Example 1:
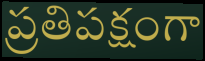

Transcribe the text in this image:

ప్రతిపక్షంగా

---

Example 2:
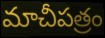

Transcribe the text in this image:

మాచీపత్రం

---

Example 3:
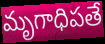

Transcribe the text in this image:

మృగాధిపతే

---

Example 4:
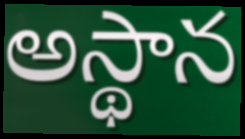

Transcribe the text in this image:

అస్థాన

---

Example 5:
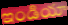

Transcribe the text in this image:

ఇండియా